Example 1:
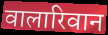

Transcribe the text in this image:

वालारिवान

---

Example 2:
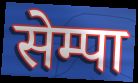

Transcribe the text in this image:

सेम्पा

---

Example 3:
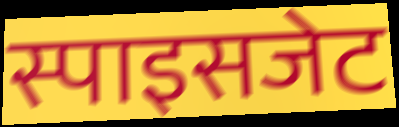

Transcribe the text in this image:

स्‍पाइसजेट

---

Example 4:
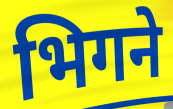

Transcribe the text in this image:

भिगने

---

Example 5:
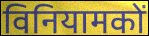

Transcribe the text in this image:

विनियामकों